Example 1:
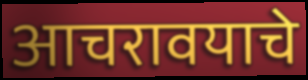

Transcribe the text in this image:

आचरावयाचे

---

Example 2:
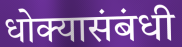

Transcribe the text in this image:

धोक्यासंबंधी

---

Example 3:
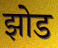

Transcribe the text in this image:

झोड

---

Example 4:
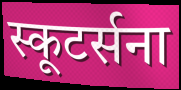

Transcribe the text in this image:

स्कूटर्सना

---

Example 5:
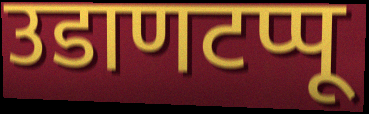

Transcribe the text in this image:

उडाणटप्पू